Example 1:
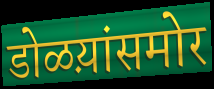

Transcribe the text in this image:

डोळय़ांसमोर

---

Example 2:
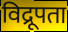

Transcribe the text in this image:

विद्रूपता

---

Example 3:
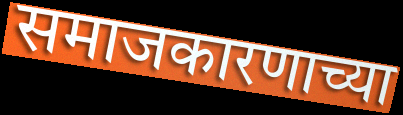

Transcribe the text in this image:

समाजकारणाच्या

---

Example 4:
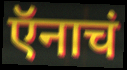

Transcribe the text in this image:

ऍनाचं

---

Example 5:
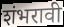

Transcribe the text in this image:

शंभरावी